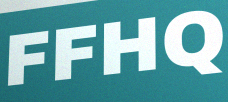
FFHQ